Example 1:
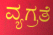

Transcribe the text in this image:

ವ್ಯಗ್ರತೆ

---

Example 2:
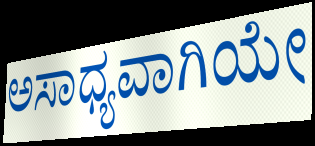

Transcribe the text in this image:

ಅಸಾಧ್ಯವಾಗಿಯೇ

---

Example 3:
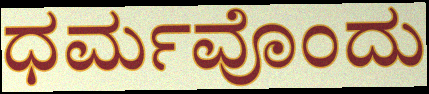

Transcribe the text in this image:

ಧರ್ಮವೊಂದು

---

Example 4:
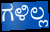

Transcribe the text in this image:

ಗಳಿಲ್ಲ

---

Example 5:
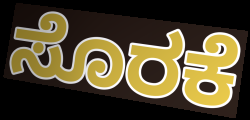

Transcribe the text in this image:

ಸೊರಕೆ